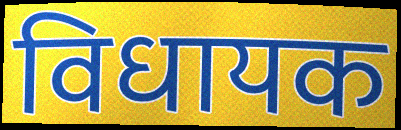
विधायक